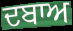
ਦਬਾਅ